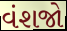
વંશજો